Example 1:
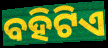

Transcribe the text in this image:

ବହିଟିଏ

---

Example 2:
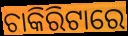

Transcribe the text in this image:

ଚାକିରିଟାରେ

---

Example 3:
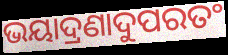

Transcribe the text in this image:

ଭୟାଦ୍ରଣାଦୁପରତଂ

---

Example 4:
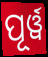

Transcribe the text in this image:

ପୂର୍ୱ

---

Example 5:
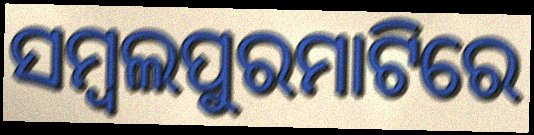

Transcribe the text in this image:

ସମ୍ବଲପୁରମାଟିରେ